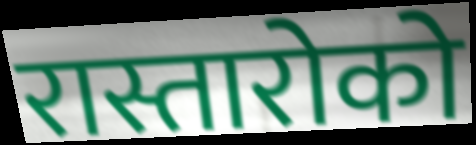
रास्तारोको